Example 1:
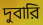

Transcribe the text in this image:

দুবারি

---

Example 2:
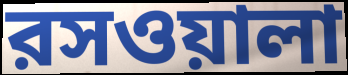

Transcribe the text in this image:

রসওয়ালা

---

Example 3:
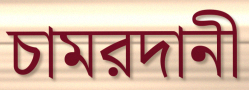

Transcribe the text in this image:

চামরদানী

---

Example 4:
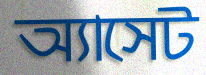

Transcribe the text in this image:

অ্যাসেট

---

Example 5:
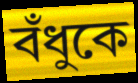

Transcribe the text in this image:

বঁধুকে